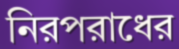
নিরপরাধের